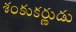
శంకుకర్ణుడు